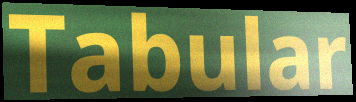
Tabular